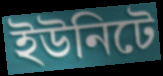
ইউনিটে